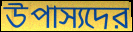
উপাস্যদের